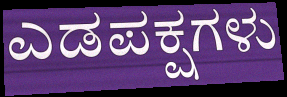
ಎಡಪಕ್ಷಗಳು